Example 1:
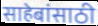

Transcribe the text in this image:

साहेबांसाठी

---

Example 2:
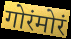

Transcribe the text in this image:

गोरंमोरं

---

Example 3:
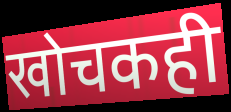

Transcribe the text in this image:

खोचकही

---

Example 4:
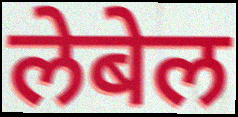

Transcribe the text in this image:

लेबेल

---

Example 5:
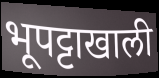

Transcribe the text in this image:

भूपट्टाखाली